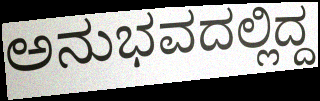
ಅನುಭವದಲ್ಲಿದ್ದ